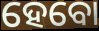
ହେବୋ